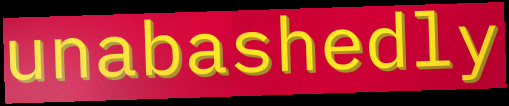
unabashedly